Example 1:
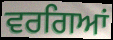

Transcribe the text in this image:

ਵਰਗਿਆਂ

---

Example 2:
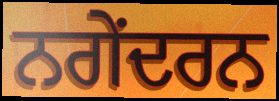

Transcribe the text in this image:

ਨਗੇਂਦਰਨ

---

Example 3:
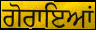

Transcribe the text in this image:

ਗੋਰਾਇਆਂ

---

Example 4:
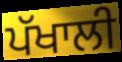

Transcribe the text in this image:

ਪੱਖਾਲੀ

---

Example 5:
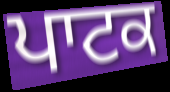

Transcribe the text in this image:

ਪਾਟਕ